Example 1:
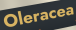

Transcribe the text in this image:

Oleracea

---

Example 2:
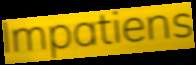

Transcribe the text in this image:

Impatiens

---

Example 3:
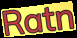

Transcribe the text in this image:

Ratn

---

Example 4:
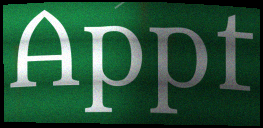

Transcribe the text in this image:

Appt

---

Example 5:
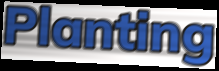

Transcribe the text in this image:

Planting